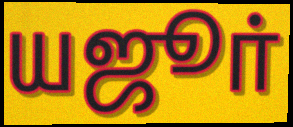
யஜூர்